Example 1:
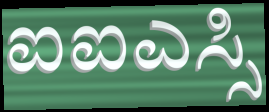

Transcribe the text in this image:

ಐಐಎಸ್ಸಿ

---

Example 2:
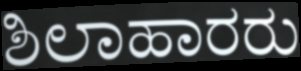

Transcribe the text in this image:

ಶಿಲಾಹಾರರು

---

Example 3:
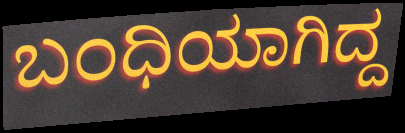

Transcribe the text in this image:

ಬಂಧಿಯಾಗಿದ್ದ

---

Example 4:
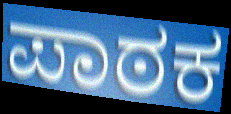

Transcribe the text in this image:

ಪಾಠಕ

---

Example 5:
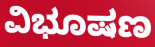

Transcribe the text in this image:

ವಿಭೂಷಣ